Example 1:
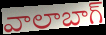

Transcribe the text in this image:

వాలాబాగ్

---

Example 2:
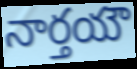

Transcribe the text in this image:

నార్తయౌ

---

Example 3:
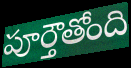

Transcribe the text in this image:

పూర్తౌతోంది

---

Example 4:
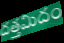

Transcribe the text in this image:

దత్తమిదం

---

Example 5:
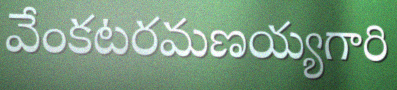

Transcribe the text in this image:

వేంకటరమణయ్యగారి